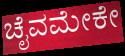
ಚೈವಮೇಕೇ